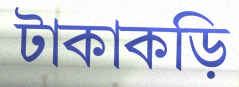
টাকাকড়ি